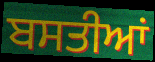
ਬਸਤੀਆਂ